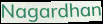
Nagardhan